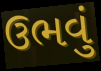
ઉભવું